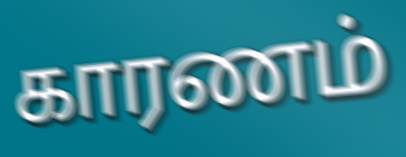
காரணம்